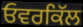
ਓਵਰਕਿੱਲ